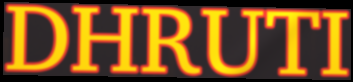
DHRUTI